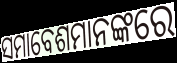
ସମାବେଶମାନଙ୍କରେ